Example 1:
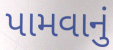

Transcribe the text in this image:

પામવાનું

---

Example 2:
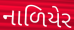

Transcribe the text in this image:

નાળિયેર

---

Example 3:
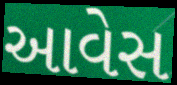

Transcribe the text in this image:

આવેસ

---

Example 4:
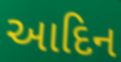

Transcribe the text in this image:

આદિન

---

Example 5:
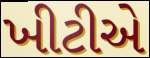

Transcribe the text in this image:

ખીટીએ